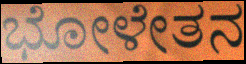
ಭೋಳೇತನ